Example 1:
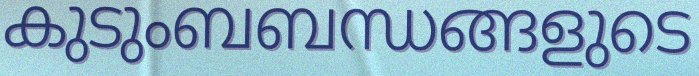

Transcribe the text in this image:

കുടുംബബന്ധങ്ങളുടെ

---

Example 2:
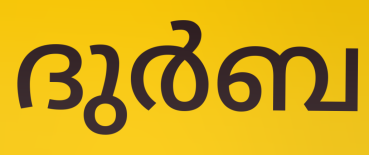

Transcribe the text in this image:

ദുർബ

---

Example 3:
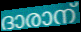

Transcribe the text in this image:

ദാരാന്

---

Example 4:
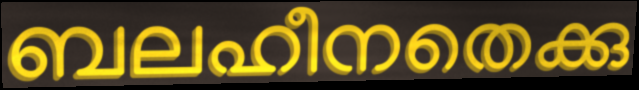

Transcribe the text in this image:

ബലഹീനതെക്കു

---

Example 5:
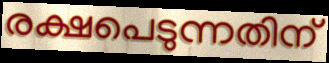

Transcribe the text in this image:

രക്ഷപെടുന്നതിന്